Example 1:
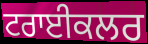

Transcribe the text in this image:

ਟਰਾਈਕਲਰ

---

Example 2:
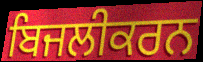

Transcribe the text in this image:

ਬਿਜਲੀਕਰਨ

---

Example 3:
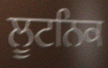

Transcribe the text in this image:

ਲੂਟਨਿਕ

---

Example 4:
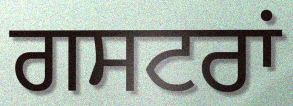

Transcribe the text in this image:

ਗਸਟਰਾਂ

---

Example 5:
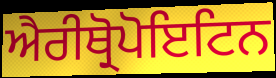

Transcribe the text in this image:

ਐਰੀਥ੍ਰੋਪੋਇਟਿਨ